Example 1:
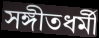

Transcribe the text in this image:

সঙ্গীতধর্মী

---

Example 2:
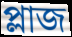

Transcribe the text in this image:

প্লাজ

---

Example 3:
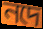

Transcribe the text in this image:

নদে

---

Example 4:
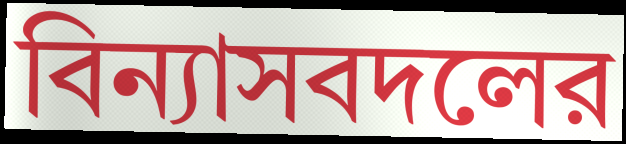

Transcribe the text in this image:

বিন্যাসবদলের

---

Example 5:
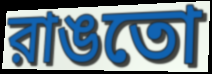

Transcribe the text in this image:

রাঙতো